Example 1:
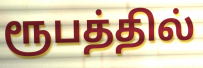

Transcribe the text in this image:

ரூபத்தில்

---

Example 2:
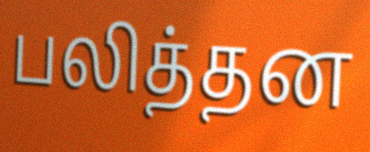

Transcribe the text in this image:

பலித்தன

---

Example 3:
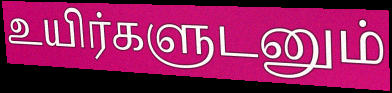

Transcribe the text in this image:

உயிர்களுடனும்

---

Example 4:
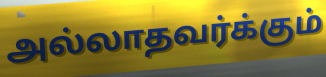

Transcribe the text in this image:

அல்லாதவர்க்கும்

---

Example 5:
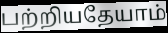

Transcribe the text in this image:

பற்றியதேயாம்